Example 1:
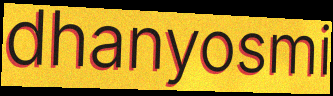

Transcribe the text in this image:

dhanyosmi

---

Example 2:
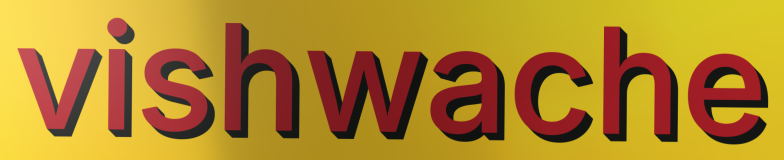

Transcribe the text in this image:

vishwache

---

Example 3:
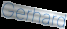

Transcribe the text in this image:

Gerhard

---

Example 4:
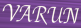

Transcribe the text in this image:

VARUN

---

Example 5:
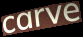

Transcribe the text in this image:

carve